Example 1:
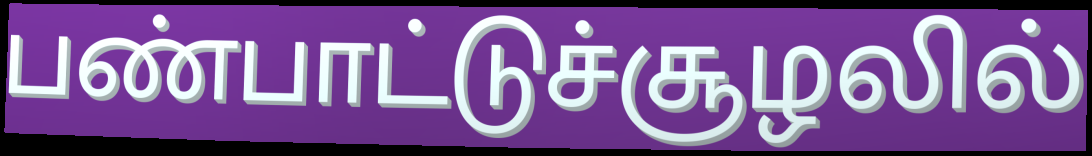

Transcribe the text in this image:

பண்பாட்டுச்சூழலில்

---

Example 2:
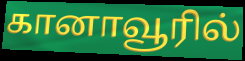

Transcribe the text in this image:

கானாவூரில்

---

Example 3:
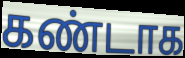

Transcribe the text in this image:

கண்டாக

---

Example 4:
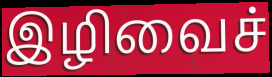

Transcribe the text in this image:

இழிவைச்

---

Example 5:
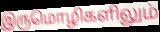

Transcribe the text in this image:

இருமொழிகளிலும்